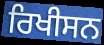
ਰਿਖੀਸਨ